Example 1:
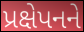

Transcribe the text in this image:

પ્રક્ષેપનને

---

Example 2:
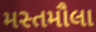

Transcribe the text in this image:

મસ્તમૌલા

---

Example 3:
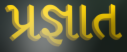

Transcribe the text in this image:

પ્રજ્ઞાત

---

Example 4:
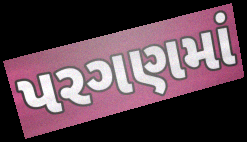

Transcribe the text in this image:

પરગણમાં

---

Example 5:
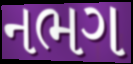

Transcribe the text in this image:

નભગ